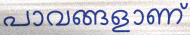
പാവങ്ങളാണ്